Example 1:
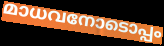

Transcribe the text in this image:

മാധവനോടൊപ്പം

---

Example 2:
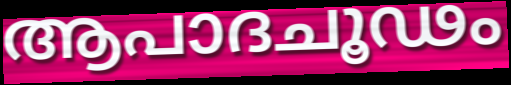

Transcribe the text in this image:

ആപാദചൂഢം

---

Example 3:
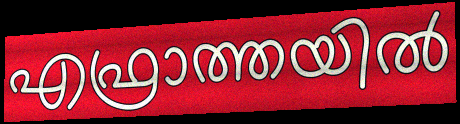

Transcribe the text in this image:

എഫ്രാത്തയിൽ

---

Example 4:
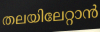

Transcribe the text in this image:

തലയിലേറ്റാൻ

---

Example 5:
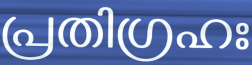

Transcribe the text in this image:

പ്രതിഗ്രഹഃ